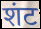
शंट